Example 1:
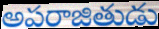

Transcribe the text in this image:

అపరాజితుడు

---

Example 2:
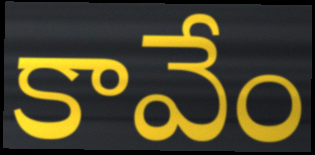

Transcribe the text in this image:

కావేం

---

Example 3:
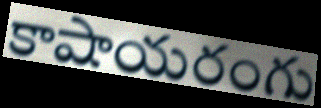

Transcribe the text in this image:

కాషాయరంగు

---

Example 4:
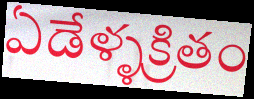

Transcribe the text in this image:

ఏడేళ్ళక్రితం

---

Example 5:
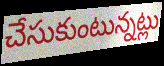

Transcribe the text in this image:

చేసుకుంటున్నట్లు